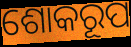
ଶୋକରୂପ